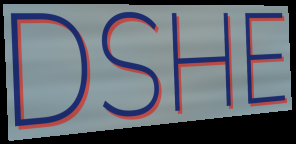
DSHE